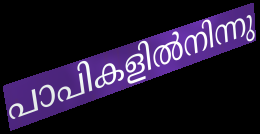
പാപികളിൽനിന്നു